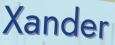
Xander